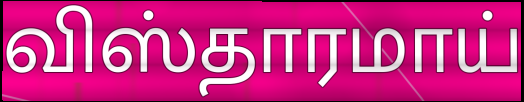
விஸ்தாரமாய்